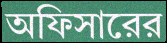
অফিসারের